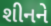
શીનને